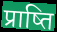
प्राष्ति